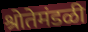
श्रोतेमंडळी